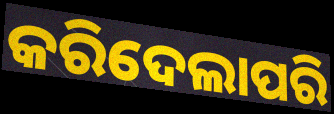
କରିଦେଲାପରି